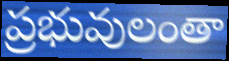
ప్రభువులంతా